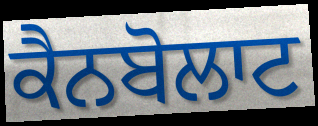
ਕੈਨਬੋਲਾਟ